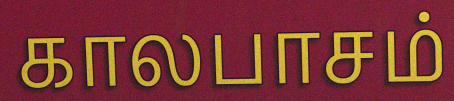
காலபாசம்